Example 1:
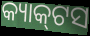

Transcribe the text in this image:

କ୍ୟାକ୍‌ଟସ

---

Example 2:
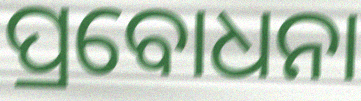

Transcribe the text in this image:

ପ୍ରବୋଧନା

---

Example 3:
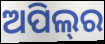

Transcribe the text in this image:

ଅପିଲ୍‍ର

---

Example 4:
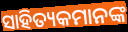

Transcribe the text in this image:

ସାହିତ୍ୟକମାନଙ୍କ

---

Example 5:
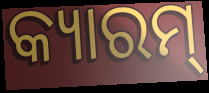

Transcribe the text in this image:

କ୍ୟାରମ୍